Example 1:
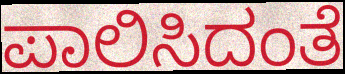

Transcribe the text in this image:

ಪಾಲಿಸಿದಂತೆ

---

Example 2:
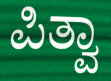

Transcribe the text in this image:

ಪಿತ್ವಾ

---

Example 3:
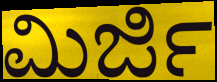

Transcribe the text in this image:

ಮಿರ್ಜಿ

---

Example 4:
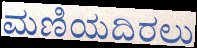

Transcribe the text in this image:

ಮಣಿಯದಿರಲು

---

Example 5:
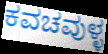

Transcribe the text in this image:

ಕವಚವುಳ್ಳ